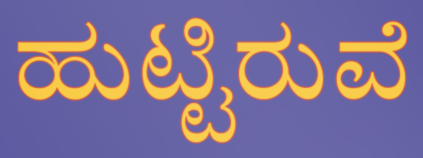
ಹುಟ್ಟಿರುವೆ